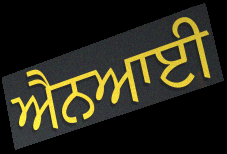
ਐਨਆਈ